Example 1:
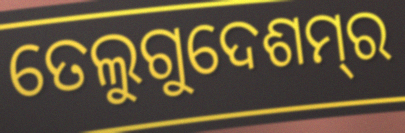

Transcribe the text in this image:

ତେଲୁଗୁଦେଶମ୍‌ର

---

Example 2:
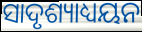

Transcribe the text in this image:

ସାଦୃଶ୍ୟାଧ୍ୟୟନ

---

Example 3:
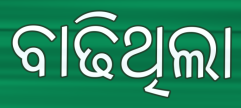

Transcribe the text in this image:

ବାଢିଥିଲା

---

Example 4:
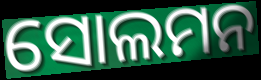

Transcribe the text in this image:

ସୋଲମନ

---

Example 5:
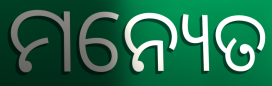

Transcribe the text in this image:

ମନ୍ୟେତ